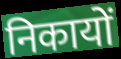
निकायों